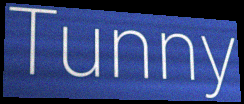
Tunny